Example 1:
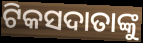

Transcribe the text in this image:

ଟିକସଦାତାଙ୍କୁ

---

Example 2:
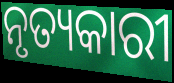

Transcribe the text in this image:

ନୃତ୍ୟକାରୀ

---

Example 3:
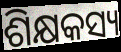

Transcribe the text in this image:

ଶିକ୍ଷକସ୍ୟ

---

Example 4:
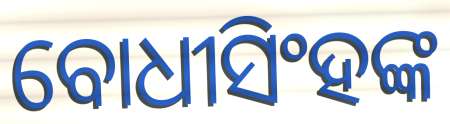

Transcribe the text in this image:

ବୋଧୀସିଂହଙ୍କ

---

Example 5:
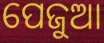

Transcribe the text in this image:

ପେଜୁଆ